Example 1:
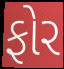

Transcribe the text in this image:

ફોર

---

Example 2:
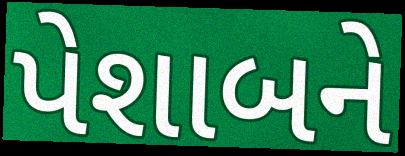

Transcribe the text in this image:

પેશાબને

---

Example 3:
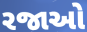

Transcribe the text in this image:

રજાઓ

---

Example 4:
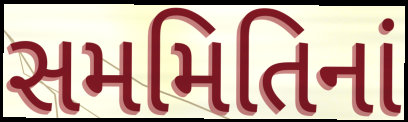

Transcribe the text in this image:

સમમિતિનાં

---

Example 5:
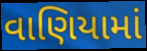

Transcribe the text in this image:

વાણિયામાં